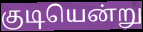
குடியென்று